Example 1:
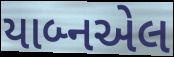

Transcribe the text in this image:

યાબ્નએલ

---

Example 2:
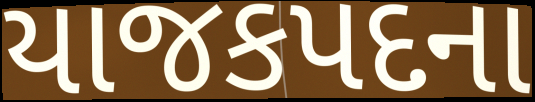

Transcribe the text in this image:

યાજકપદના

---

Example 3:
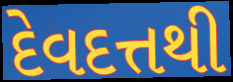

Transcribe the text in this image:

દેવદત્તથી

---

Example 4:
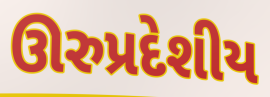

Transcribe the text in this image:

ઊરુપ્રદેશીય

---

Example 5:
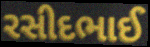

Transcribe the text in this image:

રસીદભાઈ